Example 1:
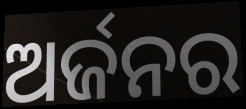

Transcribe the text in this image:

ଅର୍ଜନର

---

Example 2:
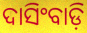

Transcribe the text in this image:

ଦାସିଂବାଡ଼ି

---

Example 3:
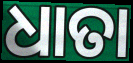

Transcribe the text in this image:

ଧାତା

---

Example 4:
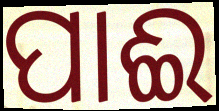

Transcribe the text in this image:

ପାଈ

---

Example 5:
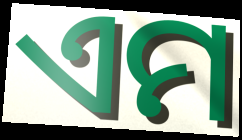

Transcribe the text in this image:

ଏମ